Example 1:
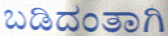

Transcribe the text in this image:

ಬಡಿದಂತಾಗಿ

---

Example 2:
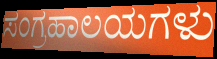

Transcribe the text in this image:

ಸಂಗ್ರಹಾಲಯಗಳು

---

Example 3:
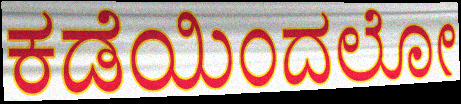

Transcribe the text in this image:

ಕಡೆಯಿಂದಲೋ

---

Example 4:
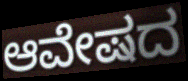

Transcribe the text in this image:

ಆವೇಷದ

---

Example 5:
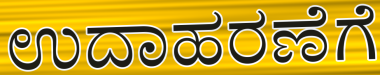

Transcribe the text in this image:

ಉದಾಹರಣೆಗೆ